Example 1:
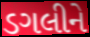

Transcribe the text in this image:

ડગલીને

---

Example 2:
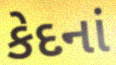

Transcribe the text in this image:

કેદનાં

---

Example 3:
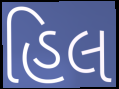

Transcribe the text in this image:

હિલ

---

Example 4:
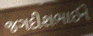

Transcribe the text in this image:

જગદીશભાઈને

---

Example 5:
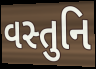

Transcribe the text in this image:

વસ્તુનિ